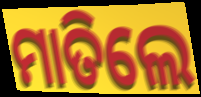
ମାତିଲେ